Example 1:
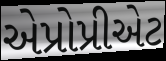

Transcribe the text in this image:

એપ્રોપ્રીએટ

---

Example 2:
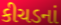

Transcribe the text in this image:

કીચડનાં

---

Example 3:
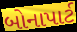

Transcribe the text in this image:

બોનાપાર્ટ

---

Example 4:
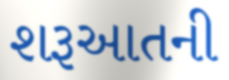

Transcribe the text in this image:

શરૂઆતની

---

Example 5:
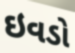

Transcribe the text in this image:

ઇવડો